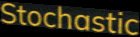
Stochastic